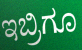
ಇಬ್ರಿಗೂ